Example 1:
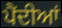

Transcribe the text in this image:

ਪੈਂਦੀਆਂ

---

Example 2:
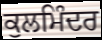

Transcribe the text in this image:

ਕੁਲਮਿੰਦਰ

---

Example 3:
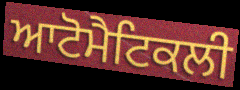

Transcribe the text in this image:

ਆਟੋਮੈਟਿਕਲੀ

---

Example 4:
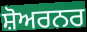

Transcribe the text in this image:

ਸ਼ੋਅਰਨਰ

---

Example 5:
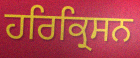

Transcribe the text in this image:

ਹਰਿਕ੍ਰਿਸਨ